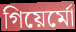
গিয়ের্মো